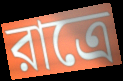
রাত্রে